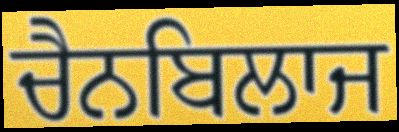
ਚੈਨਬਿਲਾਜ